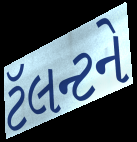
ટૅલન્ટને